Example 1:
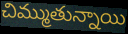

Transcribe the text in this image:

చిమ్ముతున్నాయి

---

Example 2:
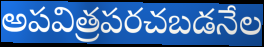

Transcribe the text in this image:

అపవిత్రపరచబడనేల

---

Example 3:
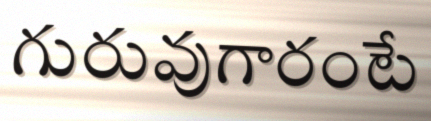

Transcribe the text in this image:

గురువుగారంటే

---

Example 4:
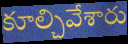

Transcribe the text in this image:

కూల్చివేశారు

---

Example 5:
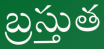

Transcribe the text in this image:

బ్రస్తుత